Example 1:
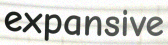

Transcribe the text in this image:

expansive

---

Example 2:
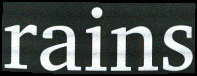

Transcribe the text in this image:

rains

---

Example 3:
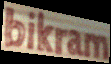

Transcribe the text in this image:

bikram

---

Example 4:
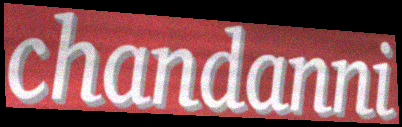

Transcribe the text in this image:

chandanni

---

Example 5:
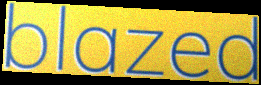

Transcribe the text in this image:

blazed